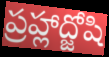
ప్రహ్లాద్జోషి